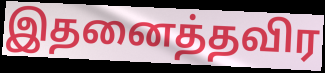
இதனைத்தவிர